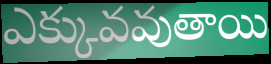
ఎక్కువవుతాయి